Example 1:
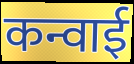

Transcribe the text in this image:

कन्वाई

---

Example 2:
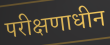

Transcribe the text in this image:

परीक्षणाधीन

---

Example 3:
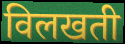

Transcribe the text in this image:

विलखती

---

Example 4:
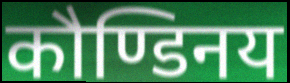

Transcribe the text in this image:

कौण्डिनय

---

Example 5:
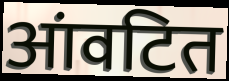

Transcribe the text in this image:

आंवटित